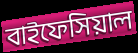
বাইফেসিয়াল